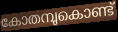
കോതമ്പുകൊണ്ട്